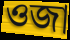
ওজা